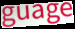
guage